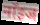
नॉइज